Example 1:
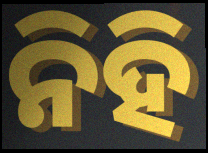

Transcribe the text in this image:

ନିହି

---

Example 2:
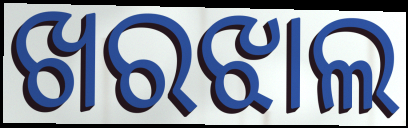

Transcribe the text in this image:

ଖରଝାଲ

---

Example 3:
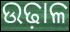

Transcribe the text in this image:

ଉଢ଼ାଳ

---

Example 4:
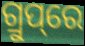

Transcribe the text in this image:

ଗ୍ରୁପ୍‌ରେ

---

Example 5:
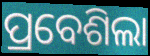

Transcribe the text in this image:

ପ୍ରବେଶିଲା